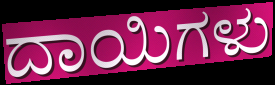
ದಾಯಿಗಳು